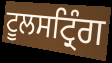
ਟੂਲਸਟ੍ਰਿੰਗ